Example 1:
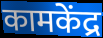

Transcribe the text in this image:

कामकेंद्र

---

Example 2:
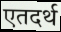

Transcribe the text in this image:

एतदर्थ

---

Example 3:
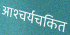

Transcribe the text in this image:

आश्चर्यचकित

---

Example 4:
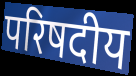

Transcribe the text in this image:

परिषदीय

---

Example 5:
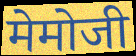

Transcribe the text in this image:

मेमोजी